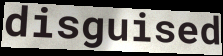
disguised